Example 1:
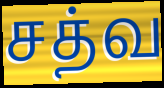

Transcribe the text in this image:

சத்வ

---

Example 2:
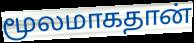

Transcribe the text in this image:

மூலமாகதான்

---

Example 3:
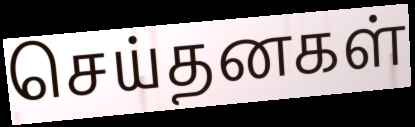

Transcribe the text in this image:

செய்தனகள்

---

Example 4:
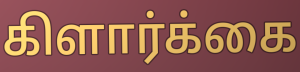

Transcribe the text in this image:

கிளார்க்கை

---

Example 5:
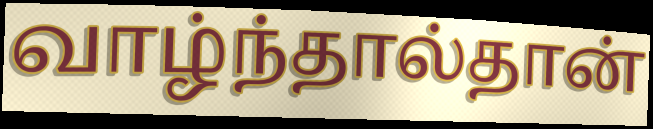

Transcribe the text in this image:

வாழ்ந்தால்தான்